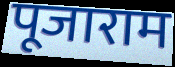
पूजाराम